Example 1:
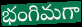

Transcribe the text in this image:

భంగిమగా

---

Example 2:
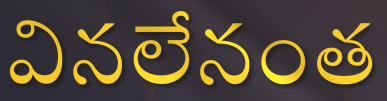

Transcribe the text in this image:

వినలేనంత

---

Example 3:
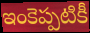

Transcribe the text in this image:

ఇంకెప్పటికీ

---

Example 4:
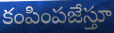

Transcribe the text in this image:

కంపింపజేస్తూ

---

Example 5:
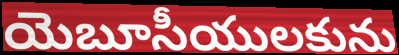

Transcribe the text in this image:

యెబూసీయులకును